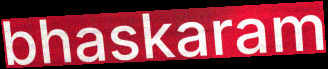
bhaskaram